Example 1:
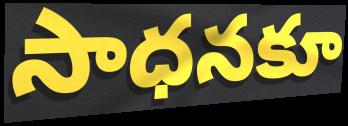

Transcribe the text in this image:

సాధనకూ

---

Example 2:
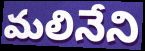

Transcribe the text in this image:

మలినేని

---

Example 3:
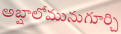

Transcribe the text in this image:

అబ్షాలోమునుగూర్చి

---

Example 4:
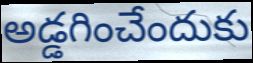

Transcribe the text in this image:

అడ్డగించేందుకు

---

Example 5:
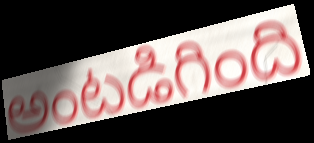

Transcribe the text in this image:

అంటడిగింది